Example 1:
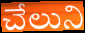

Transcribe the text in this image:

చేలుని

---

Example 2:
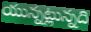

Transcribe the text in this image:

యున్నట్లున్నది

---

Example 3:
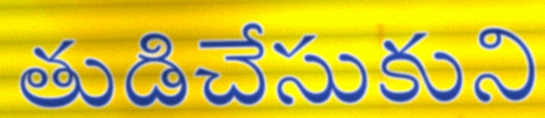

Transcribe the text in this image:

తుడిచేసుకుని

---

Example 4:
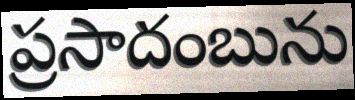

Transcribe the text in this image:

ప్రసాదంబును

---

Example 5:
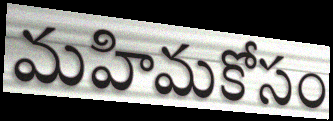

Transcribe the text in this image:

మహిమకోసం